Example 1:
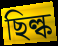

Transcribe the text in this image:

ছিল্ক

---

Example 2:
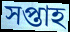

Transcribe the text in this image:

সপ্তাহ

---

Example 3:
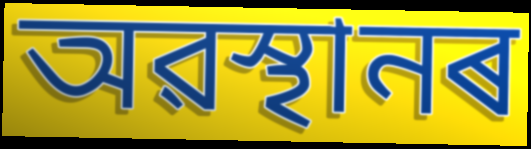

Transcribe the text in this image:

অৱস্থানৰ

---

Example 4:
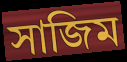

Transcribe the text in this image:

সাজিম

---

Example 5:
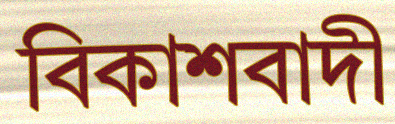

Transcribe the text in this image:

বিকাশবাদী